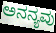
ಅನನ್ಯವು